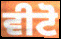
ਵੀਟੋ